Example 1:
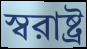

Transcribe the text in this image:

স্বরাষ্ট্র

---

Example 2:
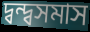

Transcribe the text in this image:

দ্বন্দ্বসমাস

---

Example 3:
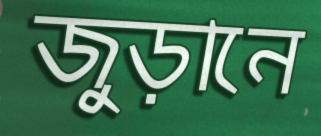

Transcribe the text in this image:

জুড়ানে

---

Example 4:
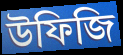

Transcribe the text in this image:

উফিজি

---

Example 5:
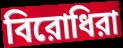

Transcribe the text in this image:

বিরোধিরা